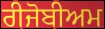
ਰੀਜੋਬੀਅਮ